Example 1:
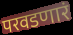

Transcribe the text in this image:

परवडणारं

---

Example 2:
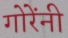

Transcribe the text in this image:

गोरेंनी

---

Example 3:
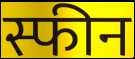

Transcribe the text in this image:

स्फीन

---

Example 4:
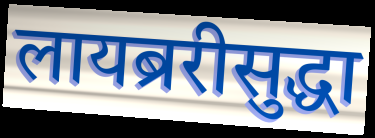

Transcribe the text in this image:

लायब्ररीसुद्धा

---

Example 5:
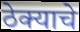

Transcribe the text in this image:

ठेक्याचे